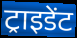
ट्राइडेंट